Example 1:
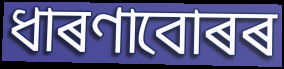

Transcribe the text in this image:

ধাৰণাবোৰৰ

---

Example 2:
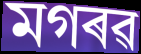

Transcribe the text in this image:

মগৰৱ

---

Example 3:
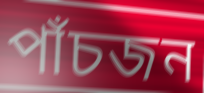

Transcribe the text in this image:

পাঁচজন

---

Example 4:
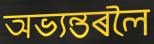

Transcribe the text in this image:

অভ্যন্তৰলৈ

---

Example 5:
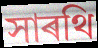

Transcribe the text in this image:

সাৰথি